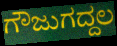
ಗೌಜುಗದ್ದಲ